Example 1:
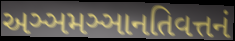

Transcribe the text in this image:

અઞ્ઞમઞ્ઞાનતિવત્તનં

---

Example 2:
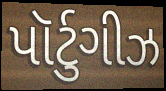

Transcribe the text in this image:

પૉર્ટુગીઝ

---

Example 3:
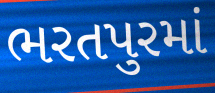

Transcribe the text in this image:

ભરતપુરમાં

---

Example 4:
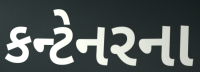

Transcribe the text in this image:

કન્ટેનરના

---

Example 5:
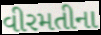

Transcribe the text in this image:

વીરમતીના